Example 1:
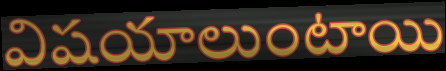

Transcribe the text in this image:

విషయాలుంటాయి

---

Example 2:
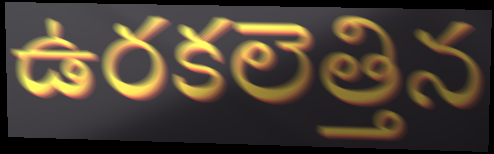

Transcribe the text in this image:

ఉరకలెత్తిన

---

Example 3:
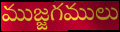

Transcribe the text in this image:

ముజ్జగములు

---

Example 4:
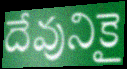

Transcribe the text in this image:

దేవునికై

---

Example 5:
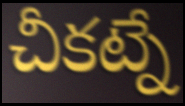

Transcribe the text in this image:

చీకట్నే